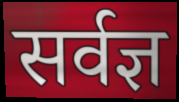
सर्वज्ञ